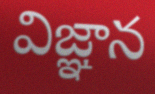
విజ్ఞాన